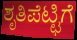
ಶೃತಿಪೆಟ್ಟಿಗೆ